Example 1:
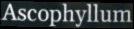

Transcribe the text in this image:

Ascophyllum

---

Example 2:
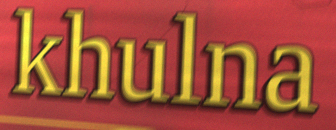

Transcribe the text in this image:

khulna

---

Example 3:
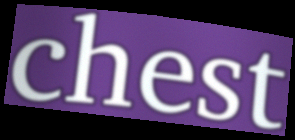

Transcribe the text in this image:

chest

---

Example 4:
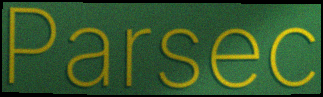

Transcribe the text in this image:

Parsec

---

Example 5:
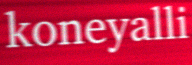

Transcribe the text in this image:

koneyalli